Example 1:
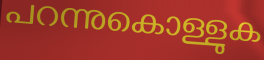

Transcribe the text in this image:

പറന്നുകൊള്ളുക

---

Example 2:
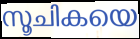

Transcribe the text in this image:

സൂചികയെ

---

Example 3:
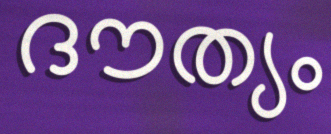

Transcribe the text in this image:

ദൗത്യം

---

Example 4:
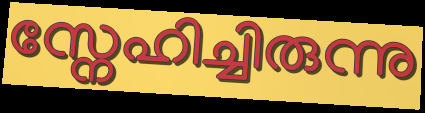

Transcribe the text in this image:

സ്നേഹിച്ചിരുന്നു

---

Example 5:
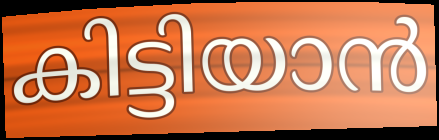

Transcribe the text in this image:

കിട്ടിയാൻ